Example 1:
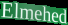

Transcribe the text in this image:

Elmehed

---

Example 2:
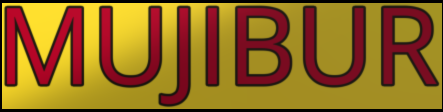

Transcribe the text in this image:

MUJIBUR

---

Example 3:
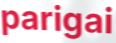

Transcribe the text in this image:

parigai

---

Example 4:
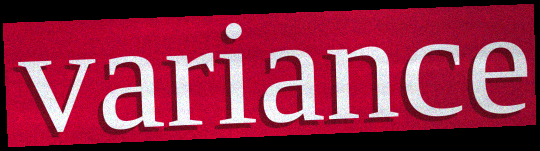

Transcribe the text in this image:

variance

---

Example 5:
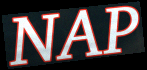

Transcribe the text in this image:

NAP